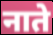
नाते